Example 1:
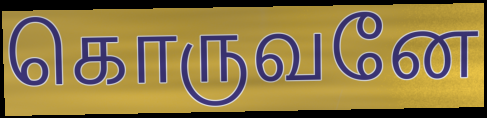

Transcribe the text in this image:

கொருவனே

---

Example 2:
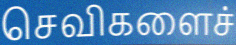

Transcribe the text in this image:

செவிகளைச்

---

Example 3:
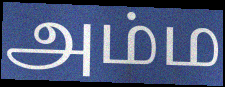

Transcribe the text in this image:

அம்ம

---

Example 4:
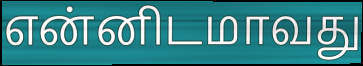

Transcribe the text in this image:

என்னிடமாவது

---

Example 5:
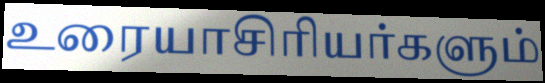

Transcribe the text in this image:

உரையாசிரியர்களும்